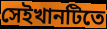
সেইখানটিতে